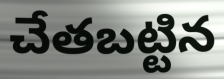
చేతబట్టిన